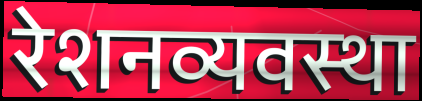
रेशनव्यवस्था